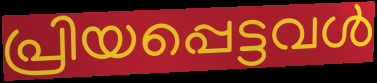
പ്രിയപ്പെട്ടവൾ